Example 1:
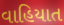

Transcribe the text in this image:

વાહિયાત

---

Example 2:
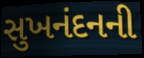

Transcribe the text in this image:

સુખનંદનની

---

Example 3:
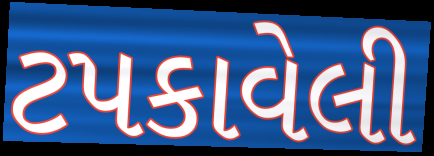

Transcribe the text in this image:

ટપકાવેલી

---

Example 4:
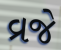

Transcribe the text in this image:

વ્રજે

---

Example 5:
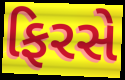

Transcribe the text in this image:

ફિરસે